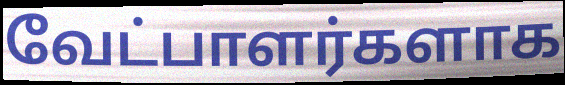
வேட்பாளர்களாக